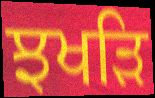
ਝਖੜਿ